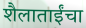
शैलाताईंचा